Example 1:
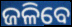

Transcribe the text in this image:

ଜଳିବେ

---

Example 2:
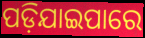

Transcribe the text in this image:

ପଡ଼ିଯାଇପାରେ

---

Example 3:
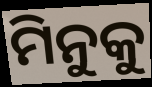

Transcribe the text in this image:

ମିନୁକୁ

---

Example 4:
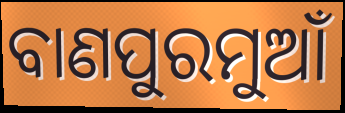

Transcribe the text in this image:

ବାଣପୁରମୁଆଁ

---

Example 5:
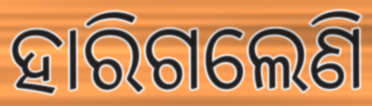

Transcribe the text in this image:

ହାରିଗଲେଣି